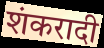
शंकरादी